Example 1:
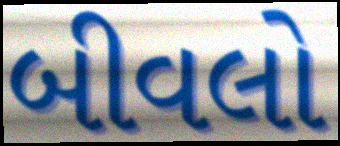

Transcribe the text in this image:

બીવલો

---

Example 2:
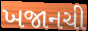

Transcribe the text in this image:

ખજાનચી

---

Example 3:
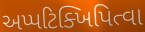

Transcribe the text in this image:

અપ્પટિક્ખિપિત્વા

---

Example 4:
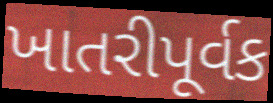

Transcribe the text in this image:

ખાતરીપૂર્વક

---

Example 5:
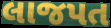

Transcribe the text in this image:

લાજપત